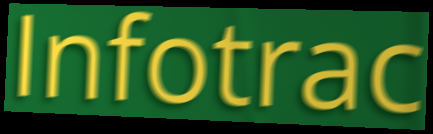
Infotrac